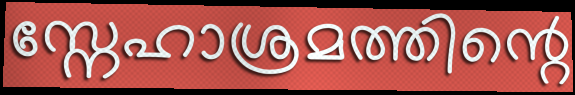
സ്നേഹാശ്രമത്തിന്റെ